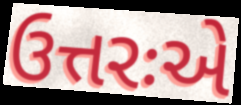
ઉત્તરઃએ